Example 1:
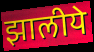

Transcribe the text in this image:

झालीये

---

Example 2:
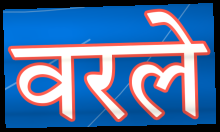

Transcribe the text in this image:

वरले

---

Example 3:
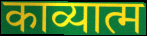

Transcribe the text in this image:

काव्यात्म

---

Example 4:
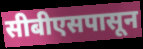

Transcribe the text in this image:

सीबीएसपासून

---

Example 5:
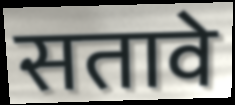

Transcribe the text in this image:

सतावे